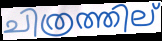
ചിത്രത്തില്